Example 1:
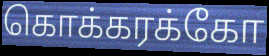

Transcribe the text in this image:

கொக்கரக்கோ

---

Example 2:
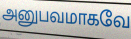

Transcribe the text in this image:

அனுபவமாகவே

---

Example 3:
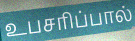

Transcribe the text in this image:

உபசரிப்பால்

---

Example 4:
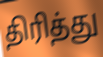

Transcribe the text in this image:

திரித்து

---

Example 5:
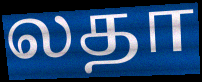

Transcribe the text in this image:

லதா